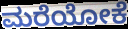
ಮರೆಯೋಕೆ